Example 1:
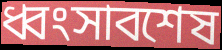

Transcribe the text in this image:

ধ্বংসাবশেষ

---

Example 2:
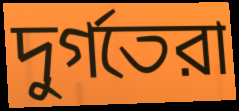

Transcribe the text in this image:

দুর্গতেরা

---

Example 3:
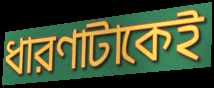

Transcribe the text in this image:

ধারণাটাকেই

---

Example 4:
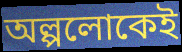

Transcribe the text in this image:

অল্পলোকেই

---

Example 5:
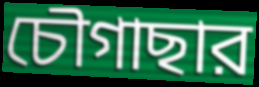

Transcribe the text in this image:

চৌগাছার